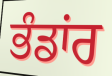
ਭੰਡਾਂਰ